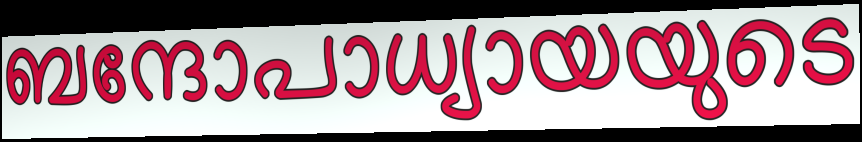
ബന്ദോപാധ്യായയുടെ